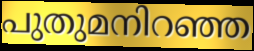
പുതുമനിറഞ്ഞ